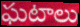
ఘటాలు